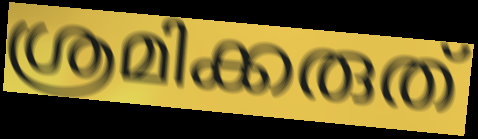
ശ്രമിക്കരുത്